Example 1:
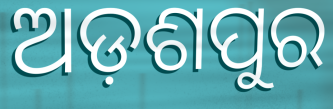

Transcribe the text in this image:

ଅଡ଼ଶପୁର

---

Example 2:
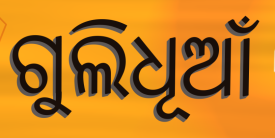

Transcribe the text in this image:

ଗୁଲିଧୂଆଁ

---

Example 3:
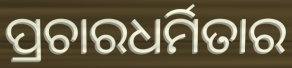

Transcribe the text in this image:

ପ୍ରଚାରଧର୍ମିତାର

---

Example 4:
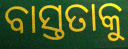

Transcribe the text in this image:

ବାସ୍ତତାକୁ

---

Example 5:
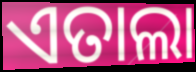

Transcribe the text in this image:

ଏତାଲା